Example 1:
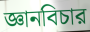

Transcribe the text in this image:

জ্ঞানবিচার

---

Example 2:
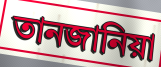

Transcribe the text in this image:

তানজানিয়া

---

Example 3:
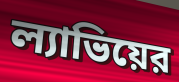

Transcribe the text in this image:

ল্যাভিয়ের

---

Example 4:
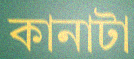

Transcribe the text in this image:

কানাটা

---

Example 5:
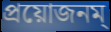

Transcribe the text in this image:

প্রয়োজনম্